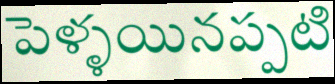
పెళ్ళయినప్పటి